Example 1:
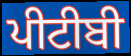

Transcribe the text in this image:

ਪੀਟੀਬੀ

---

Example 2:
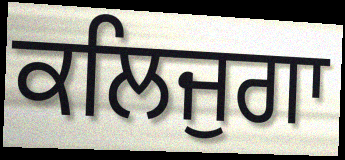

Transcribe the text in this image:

ਕਲਿਜੁਗਾ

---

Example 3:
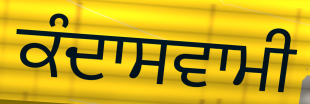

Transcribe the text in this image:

ਕੰਦਾਸਵਾਮੀ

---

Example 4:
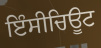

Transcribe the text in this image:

ਇੰਸੀਚਿਊਟ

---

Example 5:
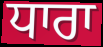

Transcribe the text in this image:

ਧਾਰਾ